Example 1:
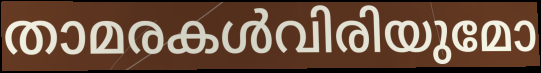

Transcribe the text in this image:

താമരകൾവിരിയുമോ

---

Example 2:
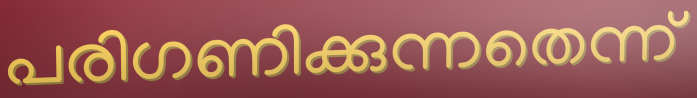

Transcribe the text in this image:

പരിഗണിക്കുന്നതെന്ന്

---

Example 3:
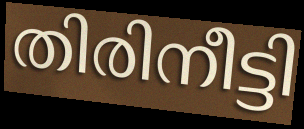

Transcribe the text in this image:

തിരിനീട്ടി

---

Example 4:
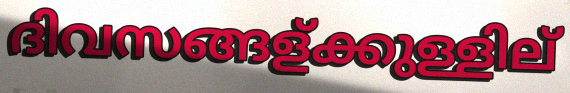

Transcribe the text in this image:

ദിവസങ്ങള്ക്കുള്ളില്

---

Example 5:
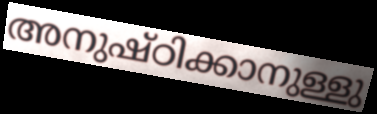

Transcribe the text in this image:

അനുഷ്ഠിക്കാനുള്ളു